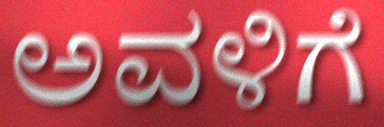
ಅವಳಿಗೆ